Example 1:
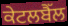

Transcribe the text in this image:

ਕੇਟਲਬੈੱਲ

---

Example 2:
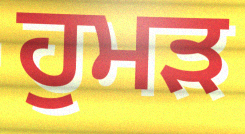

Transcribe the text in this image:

ਹੁਮੜ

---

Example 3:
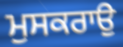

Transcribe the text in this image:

ਮੁਸਕਰਾਉ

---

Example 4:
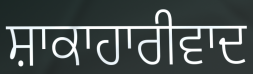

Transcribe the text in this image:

ਸ਼ਾਕਾਹਾਰੀਵਾਦ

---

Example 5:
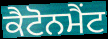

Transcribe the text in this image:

ਕੈਟੋਨਮੈਂਟ